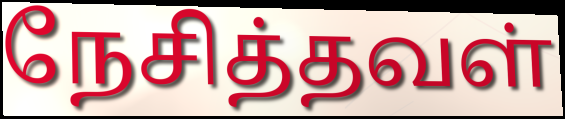
நேசித்தவள்